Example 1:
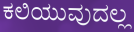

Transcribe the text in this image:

ಕಲಿಯುವುದಲ್ಲ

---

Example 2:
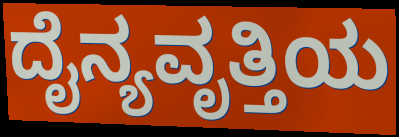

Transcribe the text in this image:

ದೈನ್ಯವೃತ್ತಿಯ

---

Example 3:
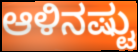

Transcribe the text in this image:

ಆಳಿನಷ್ಟು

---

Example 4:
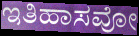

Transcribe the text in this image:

ಇತಿಹಾಸವೋ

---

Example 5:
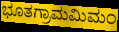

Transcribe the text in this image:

ಭೂತಗ್ರಾಮಮಿಮಂ